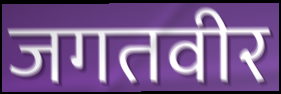
जगतवीर